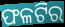
ଫଳଟିର